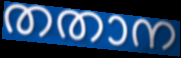
തതാന